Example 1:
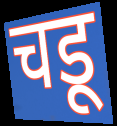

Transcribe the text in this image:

चडू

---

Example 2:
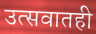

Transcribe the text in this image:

उत्सवातही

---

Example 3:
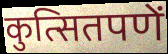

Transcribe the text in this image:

कुत्सितपणें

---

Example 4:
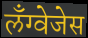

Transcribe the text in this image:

लँग्वेजेस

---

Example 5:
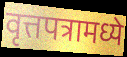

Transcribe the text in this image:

वृत्तपत्रामध्ये